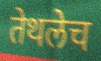
तेथलेच